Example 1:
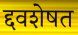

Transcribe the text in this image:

द्दवशेषत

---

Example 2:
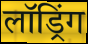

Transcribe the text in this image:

लॉड्रिंग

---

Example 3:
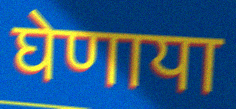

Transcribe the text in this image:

घेणाया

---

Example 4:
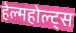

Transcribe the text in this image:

हेल्महोल्ट्स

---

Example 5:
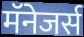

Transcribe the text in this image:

मॅनेजर्स